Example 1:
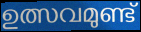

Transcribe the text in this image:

ഉത്സവമുണ്ട്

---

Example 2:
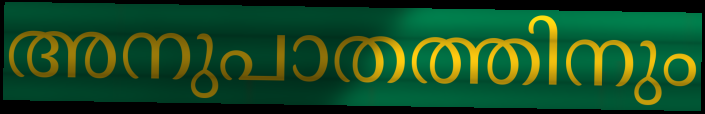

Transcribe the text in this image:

അനുപാതത്തിനും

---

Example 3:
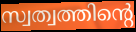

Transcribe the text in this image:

സ്വത്വത്തിന്റെ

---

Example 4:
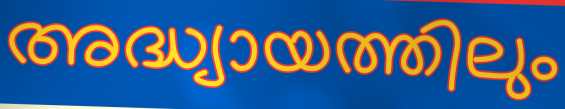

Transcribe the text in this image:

അദ്ധ്യായത്തിലും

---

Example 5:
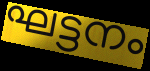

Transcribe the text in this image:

ഘട്ടനം